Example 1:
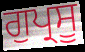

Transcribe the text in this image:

ਗੁਪ੍ਰਸੂ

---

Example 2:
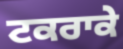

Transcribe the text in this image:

ਟਕਰਾਕੇ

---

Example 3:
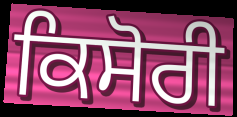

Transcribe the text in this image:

ਕਿਸੋਰੀ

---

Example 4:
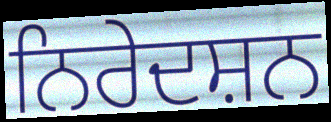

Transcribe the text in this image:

ਨਿਰੇਦਸ਼ਨ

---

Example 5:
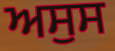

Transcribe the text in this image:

ਅਸੁਸ